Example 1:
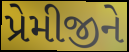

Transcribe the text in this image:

પ્રેમીજીને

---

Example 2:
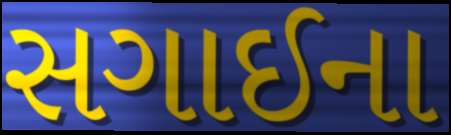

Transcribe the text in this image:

સગાઈના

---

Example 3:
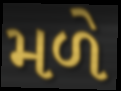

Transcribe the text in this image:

મળે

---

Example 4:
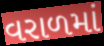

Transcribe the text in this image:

વરાળમાં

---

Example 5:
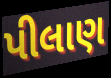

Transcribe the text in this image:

પીલાણ